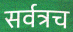
सर्वत्रच